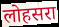
लोहसरा